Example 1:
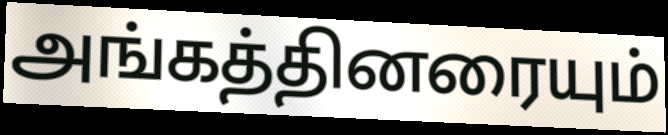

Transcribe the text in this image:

அங்கத்தினரையும்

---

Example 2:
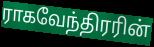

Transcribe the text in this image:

ராகவேந்திரரின்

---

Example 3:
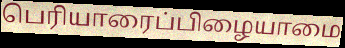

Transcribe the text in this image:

பெரியாரைப்பிழையாமை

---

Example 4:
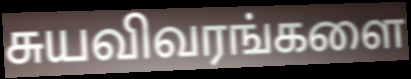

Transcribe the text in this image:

சுயவிவரங்களை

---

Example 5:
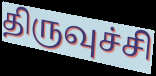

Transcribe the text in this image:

திருவுச்சி